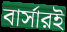
বার্সারই